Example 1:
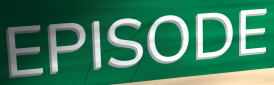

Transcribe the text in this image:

EPISODE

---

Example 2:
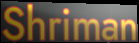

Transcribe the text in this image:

Shriman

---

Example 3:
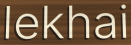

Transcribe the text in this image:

lekhai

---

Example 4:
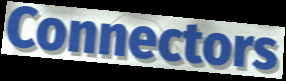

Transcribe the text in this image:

Connectors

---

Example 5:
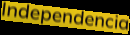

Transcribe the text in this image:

Independencia